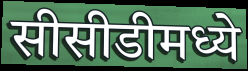
सीसीडीमध्ये